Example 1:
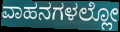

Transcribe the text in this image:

ವಾಹನಗಳಲ್ಲೋ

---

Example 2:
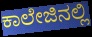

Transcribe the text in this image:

ಕಾಲೇಜಿನಲ್ಲಿ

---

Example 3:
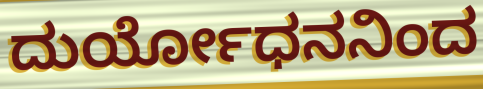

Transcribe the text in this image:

ದುರ್ಯೋಧನನಿಂದ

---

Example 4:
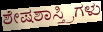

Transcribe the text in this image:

ಶೇಷಶಾಸ್ತ್ರಿಗಳು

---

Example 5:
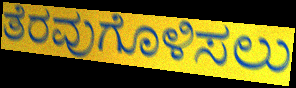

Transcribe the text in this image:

ತೆರವುಗೊಳಿಸಲು